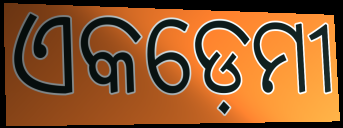
ଏକଡ଼େମୀ